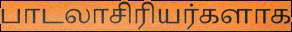
பாடலாசிரியர்களாக